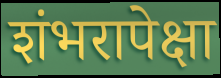
शंभरापेक्षा